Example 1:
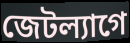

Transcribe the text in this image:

জেটল্যাগে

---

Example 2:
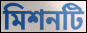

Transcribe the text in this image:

মিশনটি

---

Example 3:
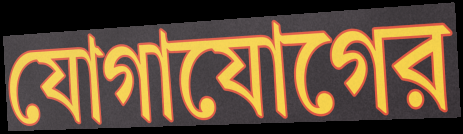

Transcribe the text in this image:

যোগাযোগের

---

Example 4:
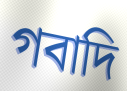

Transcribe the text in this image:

গবাদি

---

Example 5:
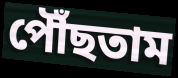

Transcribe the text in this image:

পৌঁছতাম